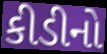
કીડીનો